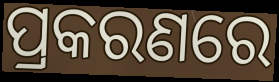
ପ୍ରକରଣରେ